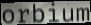
orbium